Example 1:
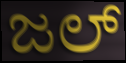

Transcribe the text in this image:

ಜಲ್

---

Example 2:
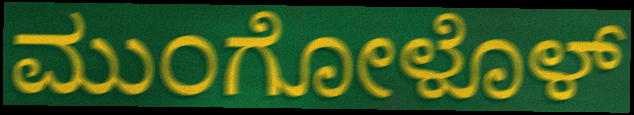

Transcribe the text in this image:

ಮುಂಗೋಳೊಳ್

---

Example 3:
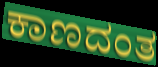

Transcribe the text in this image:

ಕಾಣದಂತ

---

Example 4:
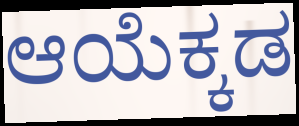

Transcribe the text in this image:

ಆಯೆಕ್ಕಡ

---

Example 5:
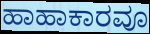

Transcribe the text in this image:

ಹಾಹಾಕಾರವೂ